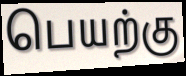
பெயற்கு